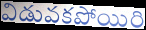
విడువకపోయిరి